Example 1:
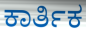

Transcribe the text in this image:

ಕಾರ್ತಿಕ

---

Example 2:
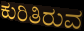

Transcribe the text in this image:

ಕುರಿತಿರುವ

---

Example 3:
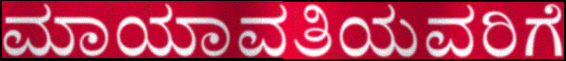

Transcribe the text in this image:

ಮಾಯಾವತಿಯವರಿಗೆ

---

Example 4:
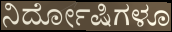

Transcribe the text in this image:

ನಿರ್ದೋಷಿಗಳೂ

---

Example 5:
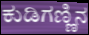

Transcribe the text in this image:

ಕುಡಿಗಣ್ಣಿನ